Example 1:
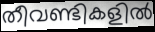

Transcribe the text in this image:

തീവണ്ടികളിൽ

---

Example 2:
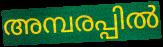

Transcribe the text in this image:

അമ്പരപ്പിൽ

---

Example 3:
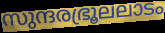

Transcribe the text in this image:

സുന്ദരഭ്രൂലലാടം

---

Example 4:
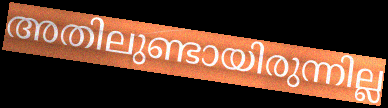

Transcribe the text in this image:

അതിലുണ്ടായിരുന്നില്ല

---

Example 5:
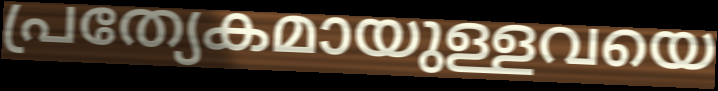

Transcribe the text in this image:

പ്രത്യേകമായുള്ളവയെ